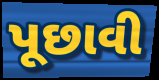
પૂછાવી